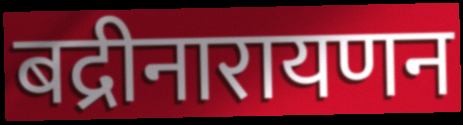
बद्रीनारायणन